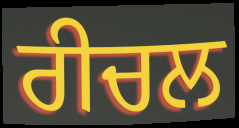
ਰੀਚਲ